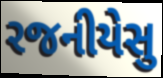
રજનીયેસુ